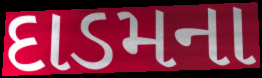
દાડમના